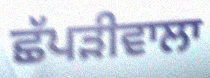
ਛੱਪੜੀਵਾਲਾ